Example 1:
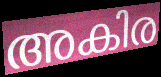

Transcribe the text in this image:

അകിര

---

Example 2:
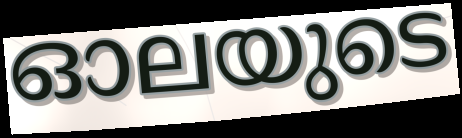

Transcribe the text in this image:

ഓലയുടെ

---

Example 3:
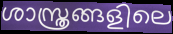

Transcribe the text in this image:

ശാസ്ത്രങ്ങളിലെ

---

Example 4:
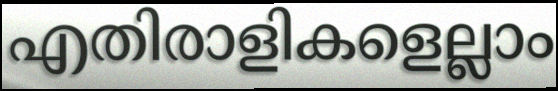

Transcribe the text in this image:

എതിരാളികളെല്ലാം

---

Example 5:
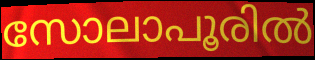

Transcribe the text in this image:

സോലാപൂരിൽ